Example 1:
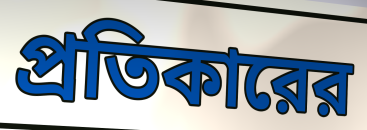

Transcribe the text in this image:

প্রতিকারের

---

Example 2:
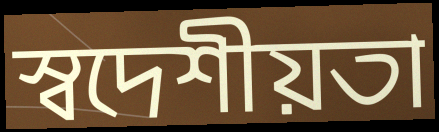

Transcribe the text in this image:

স্বদেশীয়তা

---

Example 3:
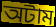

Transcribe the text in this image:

অটাম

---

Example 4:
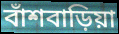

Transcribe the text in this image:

বাঁশবাড়িয়া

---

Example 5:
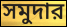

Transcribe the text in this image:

সমুদার